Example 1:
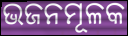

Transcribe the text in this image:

ଭଜନମୂଳକ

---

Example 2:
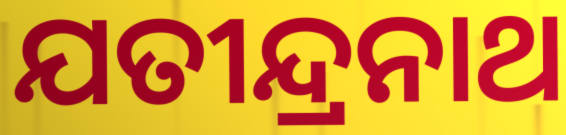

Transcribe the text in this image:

ଯତୀନ୍ଦ୍ରନାଥ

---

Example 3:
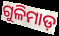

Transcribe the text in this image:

ଗୁଳିମାଡ଼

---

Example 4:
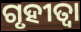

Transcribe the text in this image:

ଗୃହୀତ୍ଵା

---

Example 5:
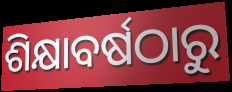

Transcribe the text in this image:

ଶିକ୍ଷାବର୍ଷଠାରୁ